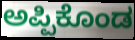
ಅಪ್ಪಿಕೊಂಡ